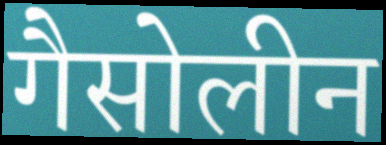
गैसोलीन